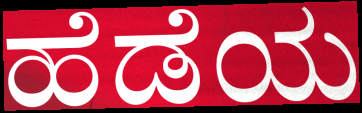
ಹೆಡೆಯ